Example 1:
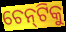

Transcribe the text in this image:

ଚେନ୍‌ଟିକୁ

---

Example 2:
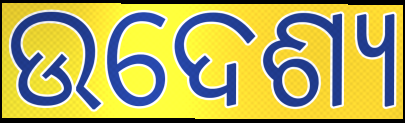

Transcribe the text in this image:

ଉଦେଶ୍ୟ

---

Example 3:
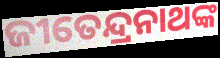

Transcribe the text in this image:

ଜୀତେନ୍ଦ୍ରନାଥଙ୍କ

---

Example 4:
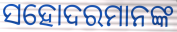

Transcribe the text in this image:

ସହୋଦରମାନଙ୍କ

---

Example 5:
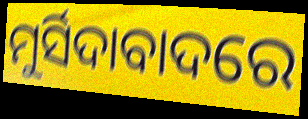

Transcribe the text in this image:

ମୁର୍ସିଦାବାଦରେ